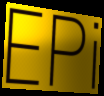
EPi